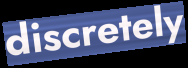
discretely